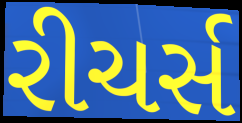
રીચર્સ